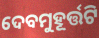
ଦେବମୁହୂର୍ତ୍ତଟି